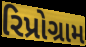
રિપ્રોગ્રામ